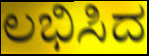
ಲಭಿಸಿದ